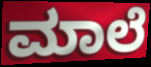
ಮಾಲೆ